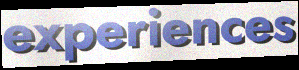
experiences